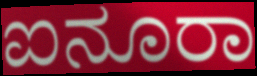
ಐನೂರಾ